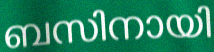
ബസിനായി